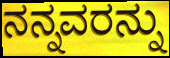
ನನ್ನವರನ್ನು